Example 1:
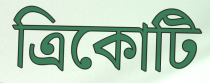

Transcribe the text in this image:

ত্রিকোটি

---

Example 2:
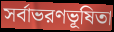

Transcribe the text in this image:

সর্বাভরণভূষিতা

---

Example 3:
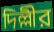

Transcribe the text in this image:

দিল্লীর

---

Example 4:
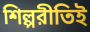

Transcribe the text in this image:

শিল্পরীতিই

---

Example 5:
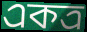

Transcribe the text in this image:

একত্র